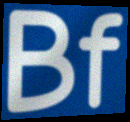
Bf